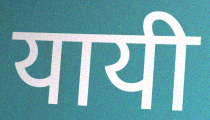
यायी